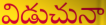
విడుచునా